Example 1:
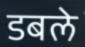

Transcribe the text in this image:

डबले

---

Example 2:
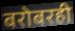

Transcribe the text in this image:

बरोबरही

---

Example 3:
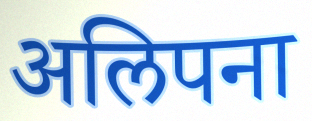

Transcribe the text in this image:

अलिपना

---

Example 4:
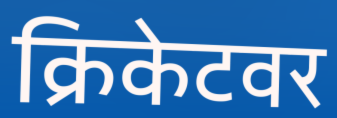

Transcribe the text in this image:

क्रिकेटवर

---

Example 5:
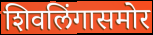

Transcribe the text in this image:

शिवलिंगासमोर